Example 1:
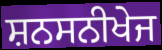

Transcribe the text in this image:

ਸ਼ਨਸਨੀਖੇਜ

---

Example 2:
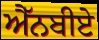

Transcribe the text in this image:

ਐੱਨਬੀਏ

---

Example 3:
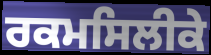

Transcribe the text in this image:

ਰਕਮਸਿਲੀਕੇ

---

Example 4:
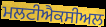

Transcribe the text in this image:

ਮਲਟੀਐਕਸੀਅਲ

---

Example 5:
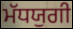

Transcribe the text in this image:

ਮੱਧਯੁਗੀ